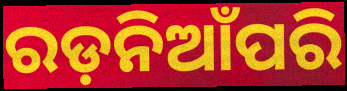
ରଡ଼ନିଆଁପରି